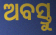
ଅବସ୍ତୁ